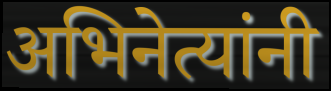
अभिनेत्यांनी